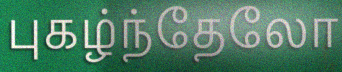
புகழ்ந்தேலோ